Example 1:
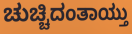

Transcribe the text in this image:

ಚುಚ್ಚಿದಂತಾಯ್ತು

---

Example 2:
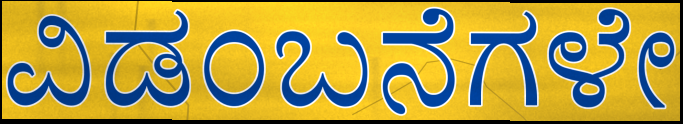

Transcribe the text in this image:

ವಿಡಂಬನೆಗಳೇ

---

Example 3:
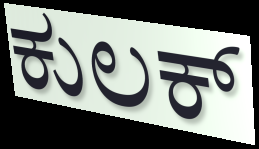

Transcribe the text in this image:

ಕುಲಕ್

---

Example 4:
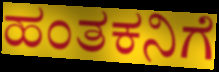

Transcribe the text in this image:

ಹಂತಕನಿಗೆ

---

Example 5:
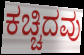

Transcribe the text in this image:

ಕಚ್ಚಿದವು